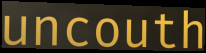
uncouth